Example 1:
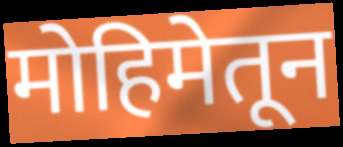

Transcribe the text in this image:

मोहिमेतून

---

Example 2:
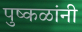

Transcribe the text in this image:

पुष्कळांनी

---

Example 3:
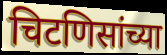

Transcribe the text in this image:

चिटणिसांच्या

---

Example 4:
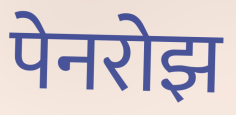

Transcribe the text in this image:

पेनरोझ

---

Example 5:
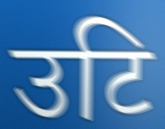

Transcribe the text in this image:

उटि